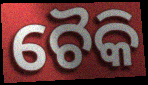
ଚୈକି